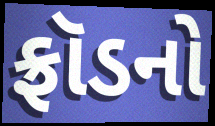
ફ્રૉડનો